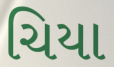
ચિયા